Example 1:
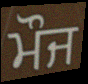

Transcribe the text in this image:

ਮੌਜ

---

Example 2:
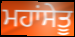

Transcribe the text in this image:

ਮਹਾਂਸੇਤੂ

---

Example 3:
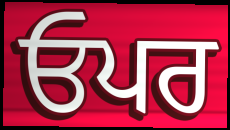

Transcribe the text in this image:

ਓਪਰ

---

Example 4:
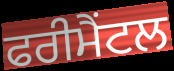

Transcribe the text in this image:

ਫਰੀਮੈਂਟਲ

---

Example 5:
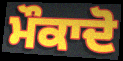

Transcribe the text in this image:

ਮੌਕਾਦੋ